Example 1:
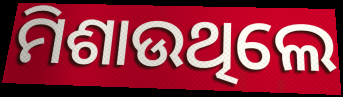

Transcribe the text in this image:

ମିଶାଉଥିଲେ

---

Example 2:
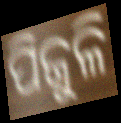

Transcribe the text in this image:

ପିଜୁଳି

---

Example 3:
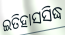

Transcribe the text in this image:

ଇତିହାସସିଦ୍ଧ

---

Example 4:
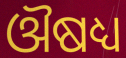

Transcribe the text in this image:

ଔଷଧ୍ୟ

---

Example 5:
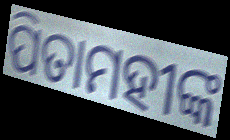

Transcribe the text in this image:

ପିତାମହୀଙ୍କ